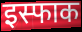
इस्फाक